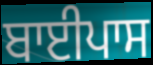
ਬਾਈਪਾਸ